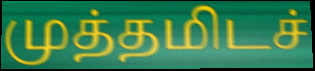
முத்தமிடச்